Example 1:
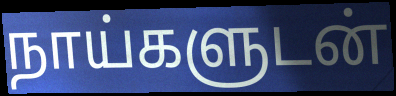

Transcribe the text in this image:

நாய்களுடன்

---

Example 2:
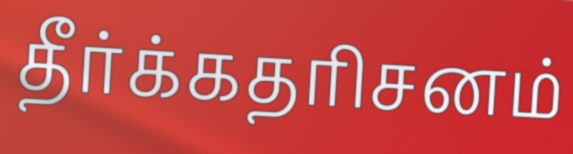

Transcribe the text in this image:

தீர்க்கதரிசனம்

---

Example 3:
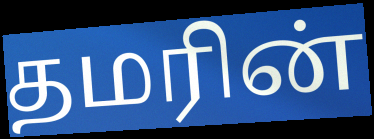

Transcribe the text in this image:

தமரின்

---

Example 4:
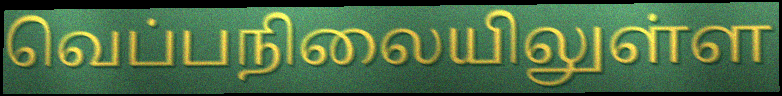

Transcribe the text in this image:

வெப்பநிலையிலுள்ள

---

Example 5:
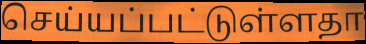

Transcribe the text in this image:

செய்யப்பட்டுள்ளதா